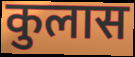
कुलास